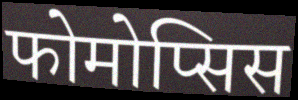
फोमोप्सिस